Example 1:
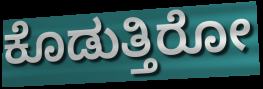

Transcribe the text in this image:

ಕೊಡುತ್ತಿರೋ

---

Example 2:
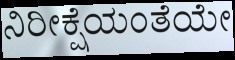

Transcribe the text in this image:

ನಿರೀಕ್ಷೆಯಂತೆಯೇ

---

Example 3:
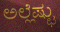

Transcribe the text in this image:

ಅಲ್ಲೆಷ್ಟು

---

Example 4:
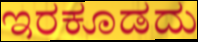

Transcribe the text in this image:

ಇರಕೂಡದು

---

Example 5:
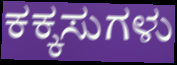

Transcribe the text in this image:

ಕಕ್ಕಸುಗಳು